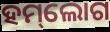
ହମ୍‌ଲୋଗ